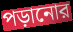
পড়ানোর